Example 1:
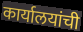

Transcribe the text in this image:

कार्यालयांची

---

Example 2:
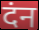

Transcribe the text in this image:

दंन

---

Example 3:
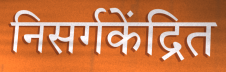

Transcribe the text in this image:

निसर्गकेंद्रित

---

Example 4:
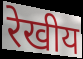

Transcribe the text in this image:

रेखीय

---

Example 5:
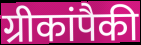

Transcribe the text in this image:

ग्रीकांपैकी